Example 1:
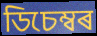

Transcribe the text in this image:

ডিচেম্বৰ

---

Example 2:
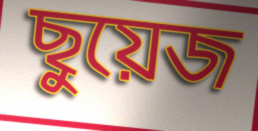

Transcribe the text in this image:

ছুয়েজ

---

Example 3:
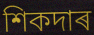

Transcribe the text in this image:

শিকদাৰ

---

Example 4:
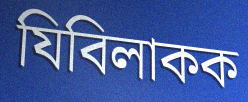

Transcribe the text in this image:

যিবিলাকক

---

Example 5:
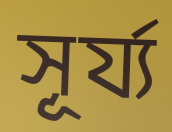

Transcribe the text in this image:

সূৰ্য্য